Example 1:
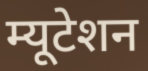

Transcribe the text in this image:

म्यूटेशन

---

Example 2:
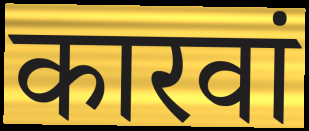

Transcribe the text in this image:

कारवां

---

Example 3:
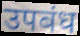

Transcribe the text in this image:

उपबंध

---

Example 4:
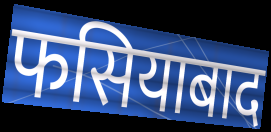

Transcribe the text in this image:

फसियाबाद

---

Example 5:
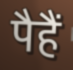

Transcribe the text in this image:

पैहैं